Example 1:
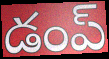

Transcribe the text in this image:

డంప్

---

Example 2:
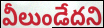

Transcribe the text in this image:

వీలుండేదని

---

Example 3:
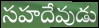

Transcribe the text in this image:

సహదేవుడు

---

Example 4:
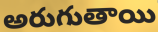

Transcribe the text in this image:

అరుగుతాయి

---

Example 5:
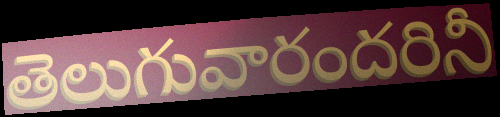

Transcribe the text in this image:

తెలుగువారందరినీ